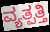
ವ್ಯತ್ಪತ್ತಿ